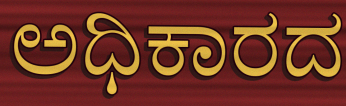
ಅಧಿಕಾರದ